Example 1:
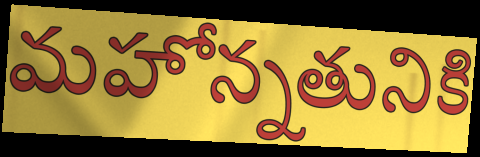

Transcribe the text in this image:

మహోన్నతునికి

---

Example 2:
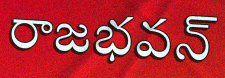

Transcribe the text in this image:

రాజభవన్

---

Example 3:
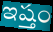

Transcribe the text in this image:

ఇష్తం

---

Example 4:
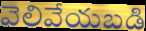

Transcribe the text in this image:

వెలివేయబడి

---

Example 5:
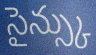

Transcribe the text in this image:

సైన్స్కు